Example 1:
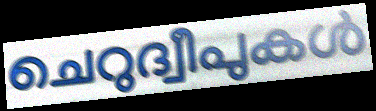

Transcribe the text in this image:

ചെറുദ്വീപുകൾ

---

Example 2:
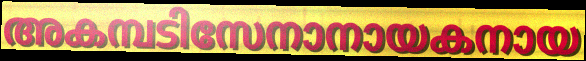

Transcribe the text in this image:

അകമ്പടിസേനാനായകനായ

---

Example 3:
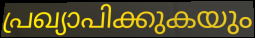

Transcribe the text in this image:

പ്രഖ്യാപിക്കുകയും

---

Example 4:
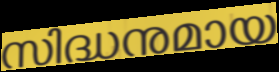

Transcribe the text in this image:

സിദ്ധനുമായ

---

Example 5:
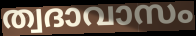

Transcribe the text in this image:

ത്വദാവാസം